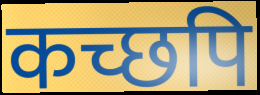
कच्छपि